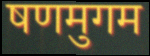
षणमुगम